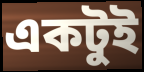
একটুই